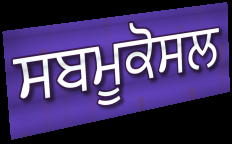
ਸਬਮੂਕੋਸਲ